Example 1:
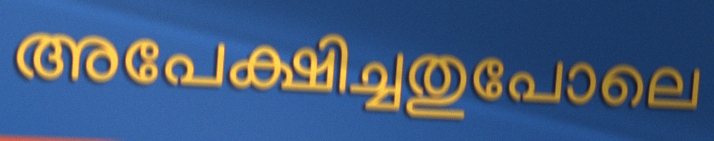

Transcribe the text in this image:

അപേക്ഷിച്ചതുപോലെ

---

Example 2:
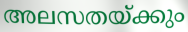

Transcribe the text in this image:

അലസതയ്ക്കും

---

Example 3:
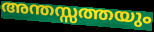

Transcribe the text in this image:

അന്തസ്സത്തയും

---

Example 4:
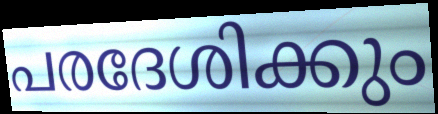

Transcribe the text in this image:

പരദേശിക്കും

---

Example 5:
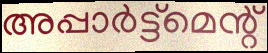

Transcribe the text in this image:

അപ്പാർട്ട്മെന്റ്